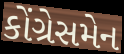
કોંગ્રેસમેન